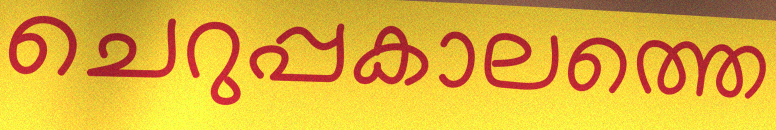
ചെറുപ്പകാലത്തെ